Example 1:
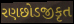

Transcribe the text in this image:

રણછોડજીકૃત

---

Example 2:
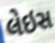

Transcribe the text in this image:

લેઇસ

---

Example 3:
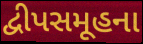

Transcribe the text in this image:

દ્વીપસમૂહના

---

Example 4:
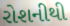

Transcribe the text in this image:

રોશનીથી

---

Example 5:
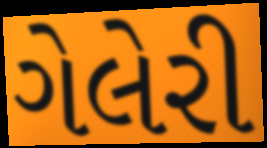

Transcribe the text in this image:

ગેલેરી